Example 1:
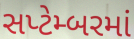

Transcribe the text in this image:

સપ્ટેમ્બરમાં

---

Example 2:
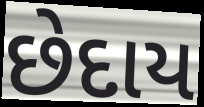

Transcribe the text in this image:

છેદાય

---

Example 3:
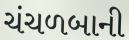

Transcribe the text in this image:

ચંચળબાની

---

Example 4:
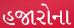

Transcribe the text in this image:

હજારોના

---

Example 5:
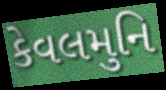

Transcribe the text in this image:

કેવલમુનિ